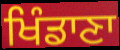
ਖਿੰਡਾਣਾ